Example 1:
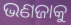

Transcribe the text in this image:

ଭଣଜାକୁ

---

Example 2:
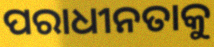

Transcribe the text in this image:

ପରାଧୀନତାକୁ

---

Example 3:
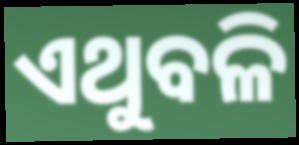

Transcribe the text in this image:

ଏଥୁବଳି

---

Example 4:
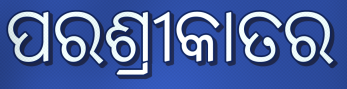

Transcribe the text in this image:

ପରଶ୍ରୀକାତର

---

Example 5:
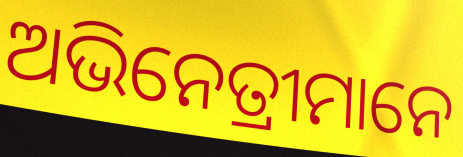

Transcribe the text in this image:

ଅଭିନେତ୍ରୀମାନେ